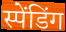
स्पेंडिंग